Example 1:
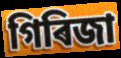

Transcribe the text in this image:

গিৰিজা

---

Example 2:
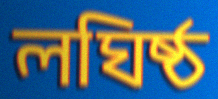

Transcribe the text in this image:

লঘিষ্ঠ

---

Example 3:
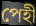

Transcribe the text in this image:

পেহী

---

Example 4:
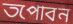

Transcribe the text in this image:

তপোবন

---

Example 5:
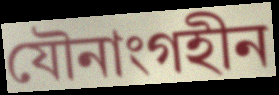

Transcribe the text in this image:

যৌনাংগহীন